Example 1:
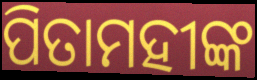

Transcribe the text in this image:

ପିତାମହୀଙ୍କ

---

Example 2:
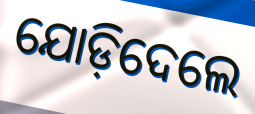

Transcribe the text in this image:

ଯୋଡ଼ିଦେଲେ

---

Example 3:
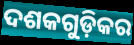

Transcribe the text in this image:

ଦଶକଗୁଡ଼ିକର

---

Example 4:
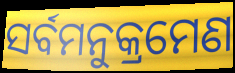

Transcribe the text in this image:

ସର୍ବମନୁକ୍ରମେଣ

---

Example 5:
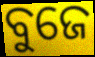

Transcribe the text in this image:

ବୁଜେ